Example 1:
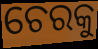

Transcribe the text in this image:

ଚେରକୁ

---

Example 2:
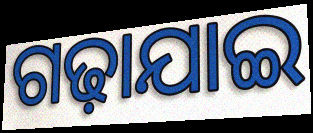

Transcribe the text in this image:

ଗଢ଼ାଯାଇ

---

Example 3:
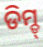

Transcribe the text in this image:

ଡିମ୍ଡ୍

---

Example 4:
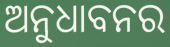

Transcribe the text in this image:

ଅନୁଧାବନର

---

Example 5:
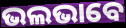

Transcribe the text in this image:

ଭଲଭାବେ